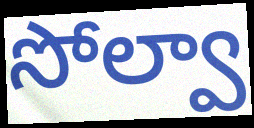
సోల్వా